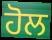
ਹੋਲ